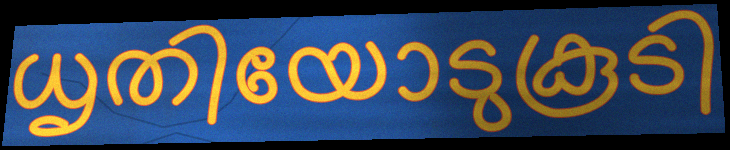
ധൃതിയോടുകൂടി